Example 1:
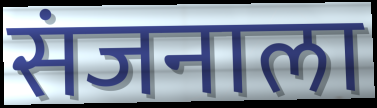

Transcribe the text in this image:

संजनाला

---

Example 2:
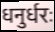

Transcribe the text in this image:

धनुर्धरः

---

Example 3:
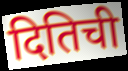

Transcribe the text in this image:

दितिची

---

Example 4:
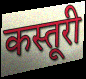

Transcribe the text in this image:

कस्तूरी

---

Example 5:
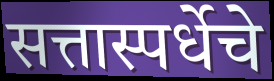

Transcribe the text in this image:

सत्तास्पर्धेचे